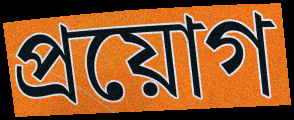
প্ৰয়োগ